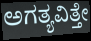
ಅಗತ್ಯವಿತ್ತೇ